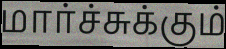
மார்ச்சுக்கும்